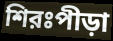
শিরঃপীড়া